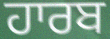
ਹਾਰਬ